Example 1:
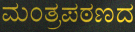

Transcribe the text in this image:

ಮಂತ್ರಪಠಣದ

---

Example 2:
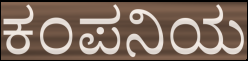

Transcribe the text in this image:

ಕಂಪನಿಯ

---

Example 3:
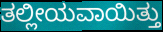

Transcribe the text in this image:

ತಲ್ಲೀಯವಾಯಿತ್ತು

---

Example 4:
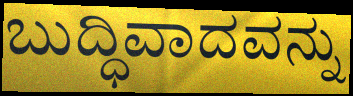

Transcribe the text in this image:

ಬುದ್ಧಿವಾದವನ್ನು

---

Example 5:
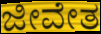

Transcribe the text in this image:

ಜೀವೇತ